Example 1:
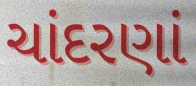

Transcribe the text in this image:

ચાંદરણાં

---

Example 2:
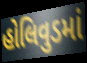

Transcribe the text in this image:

હોલિવુડમાં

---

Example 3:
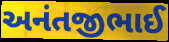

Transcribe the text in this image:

અનંતજીભાઈ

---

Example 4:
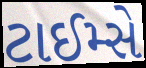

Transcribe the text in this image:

ટાઈમ્સે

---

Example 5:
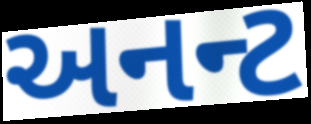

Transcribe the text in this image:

અનન્ટ